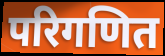
परिगणित